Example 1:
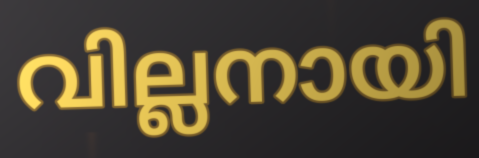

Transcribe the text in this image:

വില്ലനായി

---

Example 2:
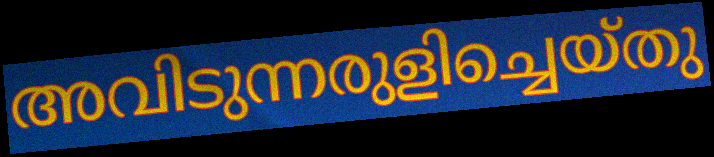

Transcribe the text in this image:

അവിടുന്നരുളിച്ചെയ്തു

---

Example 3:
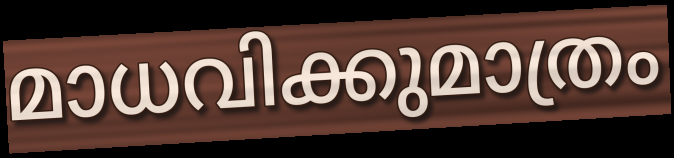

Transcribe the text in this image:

മാധവിക്കുമാത്രം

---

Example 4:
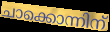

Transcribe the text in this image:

ചാക്കൊന്നിന്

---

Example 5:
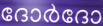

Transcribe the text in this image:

ദോർദോ